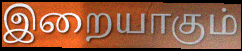
இறையாகும்